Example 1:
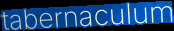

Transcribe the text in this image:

tabernaculum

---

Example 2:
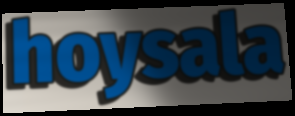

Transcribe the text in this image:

hoysala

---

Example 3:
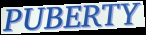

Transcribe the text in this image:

PUBERTY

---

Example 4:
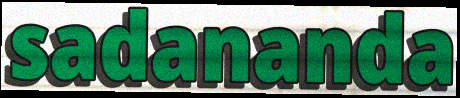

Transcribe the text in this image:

sadananda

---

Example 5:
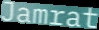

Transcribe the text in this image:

Jamrat